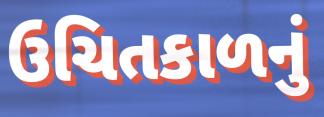
ઉચિતકાળનું